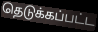
தெடுக்கப்பட்ட